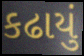
કઢાયું